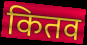
कितव